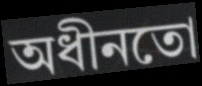
অধীনতো